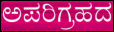
ಅಪರಿಗ್ರಹದ